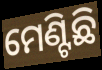
ମେଣ୍ଟିଛି